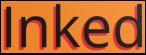
Inked